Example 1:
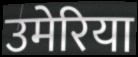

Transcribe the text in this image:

उमेरिया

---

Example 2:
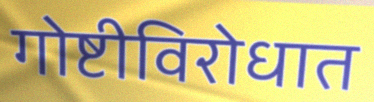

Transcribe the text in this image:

गोष्टीविरोधात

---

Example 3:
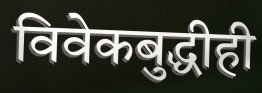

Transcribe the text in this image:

विवेकबुद्धीही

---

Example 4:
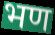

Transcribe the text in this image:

भण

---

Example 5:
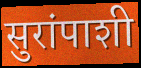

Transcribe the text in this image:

सुरांपाशी